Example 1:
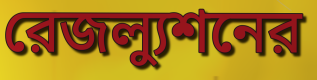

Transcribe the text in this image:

রেজল্যুশনের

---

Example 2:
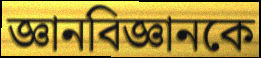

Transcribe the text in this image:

জ্ঞানবিজ্ঞানকে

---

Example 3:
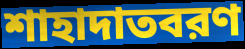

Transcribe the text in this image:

শাহাদাতবরণ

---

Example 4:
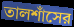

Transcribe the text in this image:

তালশাঁসের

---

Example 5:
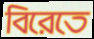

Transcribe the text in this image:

বিরেতে